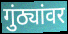
गुंठ्यांवर